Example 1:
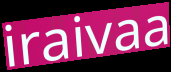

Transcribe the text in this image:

iraivaa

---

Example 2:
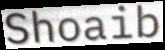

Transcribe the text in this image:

Shoaib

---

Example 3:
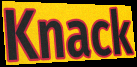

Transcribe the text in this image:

Knack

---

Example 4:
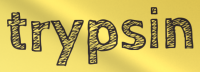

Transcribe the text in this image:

trypsin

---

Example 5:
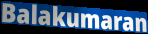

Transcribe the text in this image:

Balakumaran